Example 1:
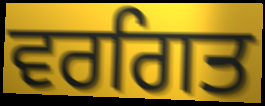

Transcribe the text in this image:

ਵਰਗਿਤ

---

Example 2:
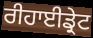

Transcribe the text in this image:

ਰੀਹਾਈਡ੍ਰੇਟ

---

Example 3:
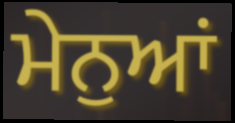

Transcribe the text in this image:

ਮੇਨੁਆਂ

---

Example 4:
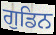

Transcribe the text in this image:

ਗੁਡਿਨ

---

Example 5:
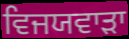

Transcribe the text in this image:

ਵਿਜਯਵਾੜਾ